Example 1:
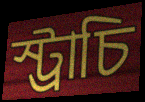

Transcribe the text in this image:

স্ট্রাচি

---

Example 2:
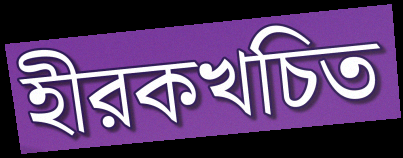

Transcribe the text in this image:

হীরকখচিত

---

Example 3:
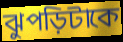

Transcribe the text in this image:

ঝুপড়িটাকে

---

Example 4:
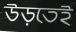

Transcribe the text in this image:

উড়তেই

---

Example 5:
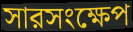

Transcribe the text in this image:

সারসংক্ষেপ